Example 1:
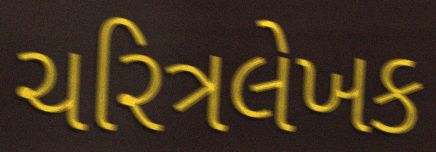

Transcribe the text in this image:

ચરિત્રલેખક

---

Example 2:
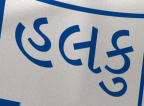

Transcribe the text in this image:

હલકુ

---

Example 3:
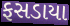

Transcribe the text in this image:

ફસડાયા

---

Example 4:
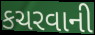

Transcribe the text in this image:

કચરવાની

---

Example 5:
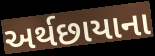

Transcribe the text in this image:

અર્થછાયાના